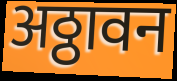
अठ्ठावन